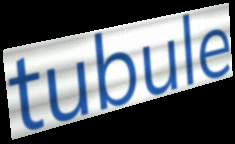
tubule